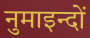
नुमाइन्दों